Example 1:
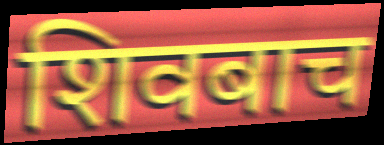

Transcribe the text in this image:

शिवबाच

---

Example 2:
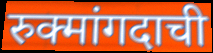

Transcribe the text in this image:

रुक्मांगदाची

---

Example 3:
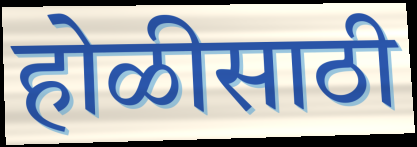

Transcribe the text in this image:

होळीसाठी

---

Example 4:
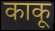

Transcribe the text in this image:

काकू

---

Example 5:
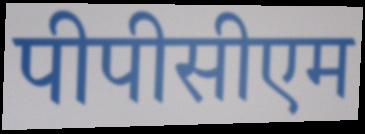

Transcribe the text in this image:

पीपीसीएम